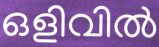
ഒളിവിൽ